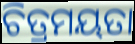
ଚିତ୍ରମୟତା